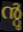
ന്റു